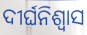
ଦୀର୍ଘନିଶ୍ବାସ